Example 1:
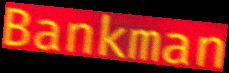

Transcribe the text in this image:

Bankman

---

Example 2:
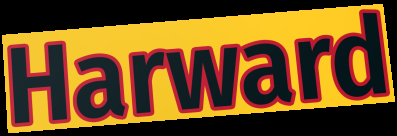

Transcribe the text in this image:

Harward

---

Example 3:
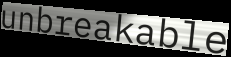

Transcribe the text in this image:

unbreakable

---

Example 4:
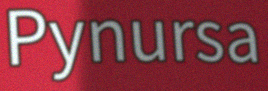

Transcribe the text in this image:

Pynursa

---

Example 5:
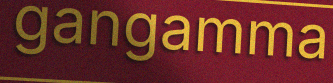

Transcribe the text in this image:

gangamma